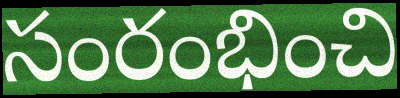
సంరంభించి